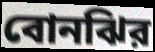
বোনঝির